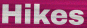
Hikes